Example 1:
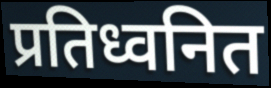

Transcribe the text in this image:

प्रतिध्वनित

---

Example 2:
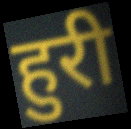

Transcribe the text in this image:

हुरी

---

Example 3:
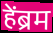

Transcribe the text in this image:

हेंब्रम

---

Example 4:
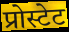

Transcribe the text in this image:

प्रोस्टेट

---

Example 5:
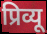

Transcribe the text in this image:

प्रिव्यू